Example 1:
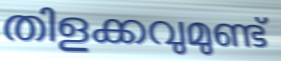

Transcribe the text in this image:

തിളക്കവുമുണ്ട്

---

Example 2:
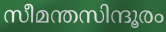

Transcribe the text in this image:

സീമന്തസിന്ദൂരം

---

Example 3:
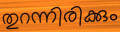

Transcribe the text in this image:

തുറന്നിരിക്കും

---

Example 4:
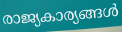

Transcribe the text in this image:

രാജ്യകാര്യങ്ങൾ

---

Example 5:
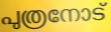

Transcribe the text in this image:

പുത്രനോട്